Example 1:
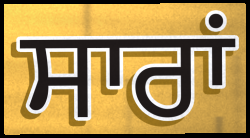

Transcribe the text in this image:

ਸਾਰਾਂ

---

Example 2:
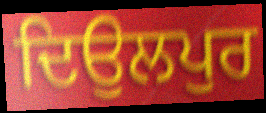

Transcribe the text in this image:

ਦਿਉਲਪੁਰ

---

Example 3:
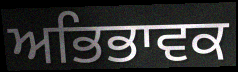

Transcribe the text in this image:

ਅਭਿਭਾਵਕ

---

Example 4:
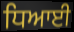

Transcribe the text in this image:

ਧਿਆਈ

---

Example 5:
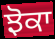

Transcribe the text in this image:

ਝੋਕਾ